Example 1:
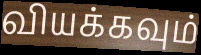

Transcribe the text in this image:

வியக்கவும்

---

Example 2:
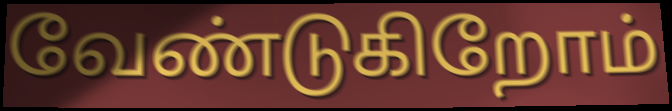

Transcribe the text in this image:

வேண்டுகிறோம்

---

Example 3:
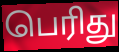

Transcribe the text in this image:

பெரிது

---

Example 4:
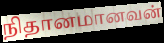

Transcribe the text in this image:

நிதானமானவன்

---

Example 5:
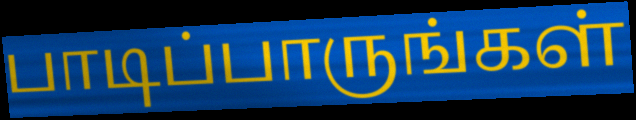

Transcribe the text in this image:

பாடிப்பாருங்கள்